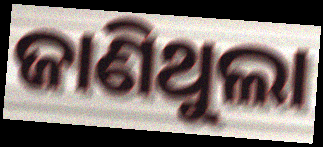
ଜାଣିଥୁଲା